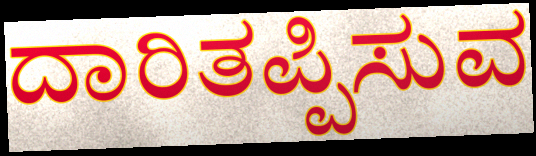
ದಾರಿತಪ್ಪಿಸುವ